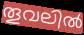
തൂവലിൽ